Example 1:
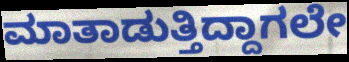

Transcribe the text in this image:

ಮಾತಾಡುತ್ತಿದ್ದಾಗಲೇ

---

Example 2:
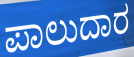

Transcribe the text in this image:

ಪಾಲುದಾರ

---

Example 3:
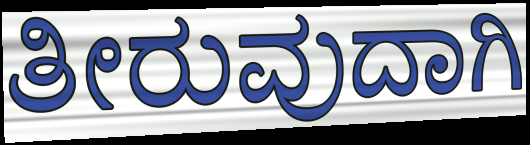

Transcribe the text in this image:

ತೀರುವುದಾಗಿ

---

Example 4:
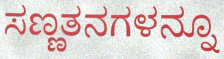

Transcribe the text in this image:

ಸಣ್ಣತನಗಳನ್ನೂ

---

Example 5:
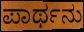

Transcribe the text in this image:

ಪಾರ್ಥನು